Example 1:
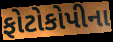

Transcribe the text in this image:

ફોટોકોપીના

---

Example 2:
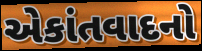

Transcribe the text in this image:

એકાંતવાદનો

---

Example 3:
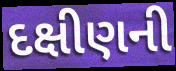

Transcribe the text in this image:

દક્ષીણની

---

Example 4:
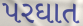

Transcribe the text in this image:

પરઘાત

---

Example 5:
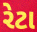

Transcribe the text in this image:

રેટા